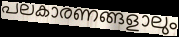
പലകാരണങ്ങളാലും